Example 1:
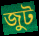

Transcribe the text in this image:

জুট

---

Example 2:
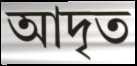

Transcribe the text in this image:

আদৃত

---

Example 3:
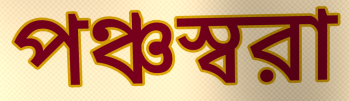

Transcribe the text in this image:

পঞ্চস্বরা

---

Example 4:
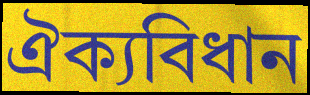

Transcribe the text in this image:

ঐক্যবিধান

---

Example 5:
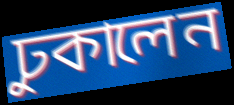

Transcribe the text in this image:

ঢুকালেন